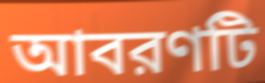
আবরণটি